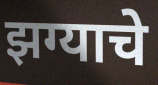
झग्याचे